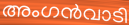
അംഗൻവാടി